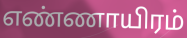
எண்ணாயிரம்